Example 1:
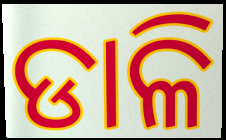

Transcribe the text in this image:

ଡାଳି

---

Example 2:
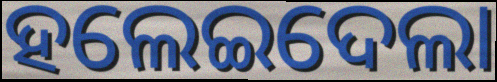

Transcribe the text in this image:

ହଲେଇଦେଲା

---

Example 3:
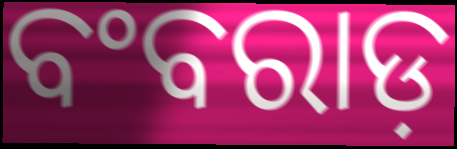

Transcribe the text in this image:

ବଂବରାଡ଼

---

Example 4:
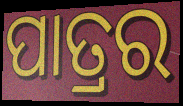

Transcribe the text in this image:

ପାତ୍ରର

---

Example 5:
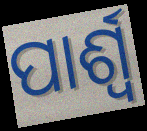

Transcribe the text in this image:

ପାର୍ଶ୍ୱ